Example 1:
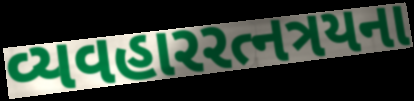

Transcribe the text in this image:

વ્યવહારરત્નત્રયના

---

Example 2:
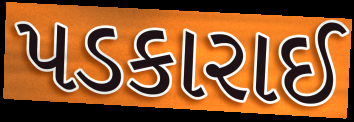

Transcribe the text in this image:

પડકારાઈ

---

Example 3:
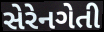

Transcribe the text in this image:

સેરેનગેતી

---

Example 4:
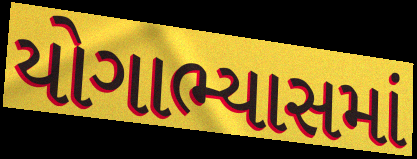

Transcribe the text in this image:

યોગાભ્યાસમાં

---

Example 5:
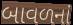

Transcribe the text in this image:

બાવળનાં